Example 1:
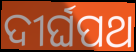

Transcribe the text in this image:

ଦୀର୍ଘପଥ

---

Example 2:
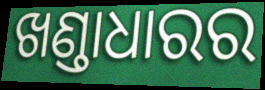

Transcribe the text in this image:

ଖଣ୍ଡାଧାରର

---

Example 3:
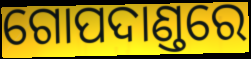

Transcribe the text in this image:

ଗୋପଦାଣ୍ଡରେ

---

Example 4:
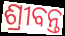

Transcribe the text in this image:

ଶ୍ରୀବନ୍ତ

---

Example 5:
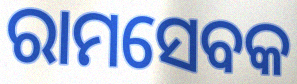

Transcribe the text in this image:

ରାମସେବକ